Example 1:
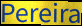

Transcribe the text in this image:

Pereira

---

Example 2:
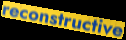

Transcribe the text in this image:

reconstructive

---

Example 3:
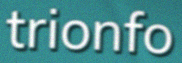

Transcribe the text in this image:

trionfo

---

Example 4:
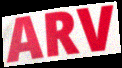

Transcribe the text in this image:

ARV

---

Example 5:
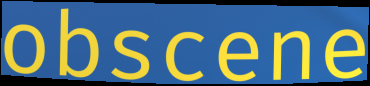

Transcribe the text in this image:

obscene